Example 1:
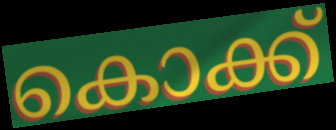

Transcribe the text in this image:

കൊക്ക്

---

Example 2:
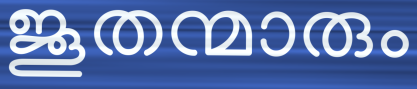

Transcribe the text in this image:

ജൂതന്മാരും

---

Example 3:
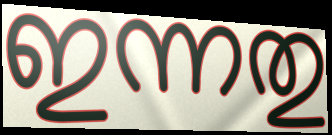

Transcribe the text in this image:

ഇന്നതു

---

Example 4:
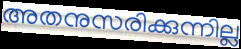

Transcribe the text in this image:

അതനുസരിക്കുന്നില്ല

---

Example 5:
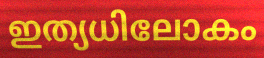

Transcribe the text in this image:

ഇത്യധിലോകം